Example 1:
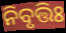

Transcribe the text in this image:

ନିବୃତ୍ତିଃ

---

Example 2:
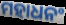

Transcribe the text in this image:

ମହାଧନଂ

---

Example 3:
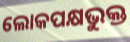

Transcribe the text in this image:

ଲୋକପକ୍ଷଭୁକ୍ତ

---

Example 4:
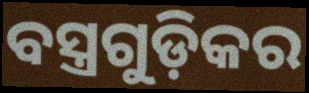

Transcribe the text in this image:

ବସ୍ତ୍ରଗୁଡ଼ିକର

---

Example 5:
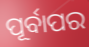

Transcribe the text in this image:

ପୂର୍ବାପର